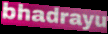
bhadrayu